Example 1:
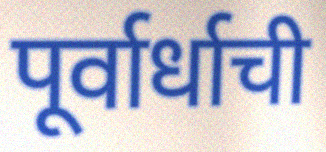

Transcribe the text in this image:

पूर्वार्धाची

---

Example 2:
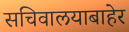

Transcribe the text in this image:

सचिवालयाबाहेर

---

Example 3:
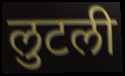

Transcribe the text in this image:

लुटली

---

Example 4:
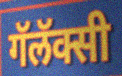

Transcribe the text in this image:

गॅलॅक्सी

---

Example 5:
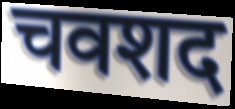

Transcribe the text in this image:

चवशद